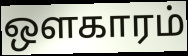
ஔகாரம்